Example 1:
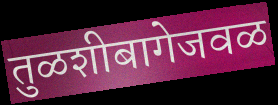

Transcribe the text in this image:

तुळशीबागेजवळ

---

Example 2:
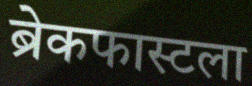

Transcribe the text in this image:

ब्रेकफास्टला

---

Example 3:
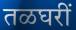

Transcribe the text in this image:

तळघरीं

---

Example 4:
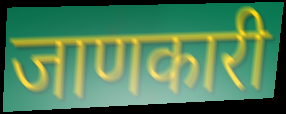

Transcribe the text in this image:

जाणकारी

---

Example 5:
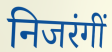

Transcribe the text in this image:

निजरंगीं